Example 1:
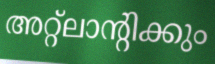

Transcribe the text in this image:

അറ്റ്ലാന്റിക്കും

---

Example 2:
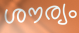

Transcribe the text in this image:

ശൗര്യം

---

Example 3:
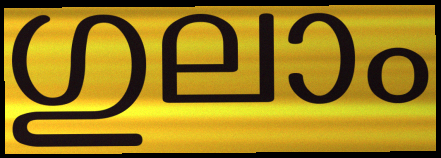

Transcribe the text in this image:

ഗുലാം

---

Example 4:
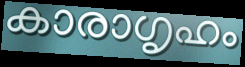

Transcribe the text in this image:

കാരാഗൃഹം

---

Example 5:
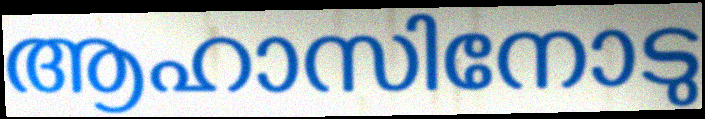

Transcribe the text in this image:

ആഹാസിനോടു